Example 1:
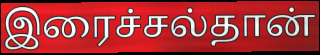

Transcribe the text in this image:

இரைச்சல்தான்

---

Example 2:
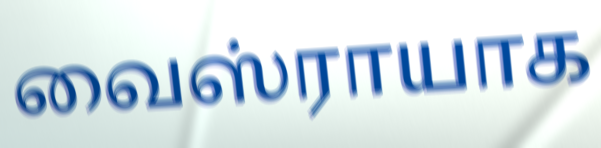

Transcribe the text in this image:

வைஸ்ராயாக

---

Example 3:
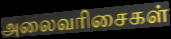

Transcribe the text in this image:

அலைவரிசைகள்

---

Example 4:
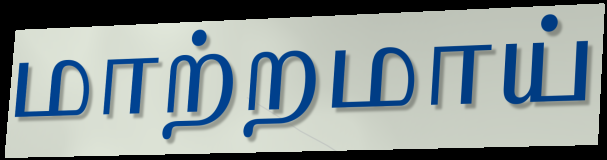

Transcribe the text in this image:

மாற்றமாய்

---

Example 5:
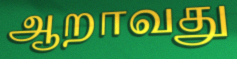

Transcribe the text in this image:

ஆறாவது